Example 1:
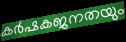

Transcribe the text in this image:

കർഷകജനതയും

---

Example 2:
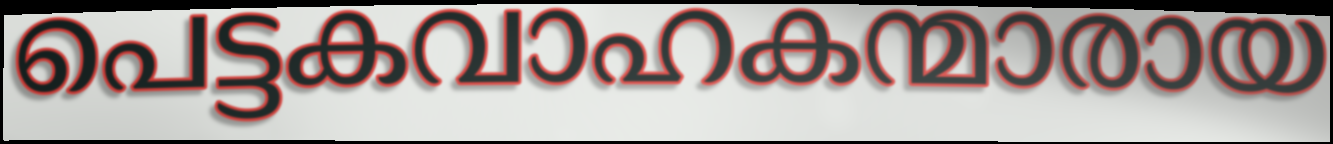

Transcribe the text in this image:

പെട്ടകവാഹകന്മാരായ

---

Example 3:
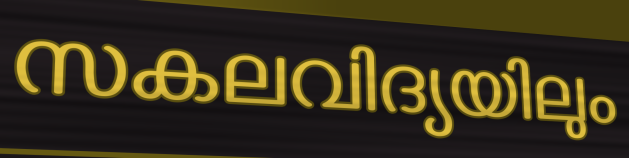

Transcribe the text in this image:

സകലവിദ്യയിലും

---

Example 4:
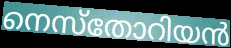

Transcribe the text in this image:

നെസ്തോറിയൻ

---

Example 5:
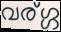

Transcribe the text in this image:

വര്ഗ്ഗ